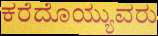
ಕರೆದೊಯ್ಯುವರು